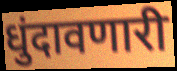
धुंदावणारी